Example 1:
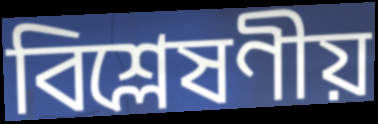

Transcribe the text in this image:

বিশ্লেষণীয়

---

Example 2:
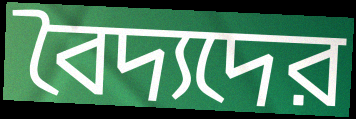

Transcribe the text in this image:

বৈদ্যদের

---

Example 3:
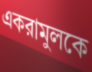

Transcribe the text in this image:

একরামুলকে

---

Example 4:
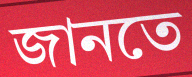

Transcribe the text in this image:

জানতে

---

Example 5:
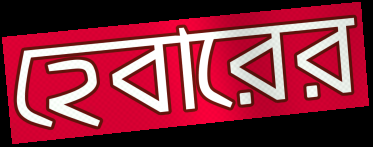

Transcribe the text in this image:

হেবারের